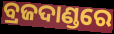
ବ୍ରଜଦାଣ୍ଡରେ